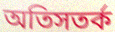
অতিসতর্ক